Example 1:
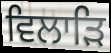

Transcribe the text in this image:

ਵਿਲਾੜਿ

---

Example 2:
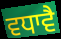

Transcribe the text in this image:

ਵਧਾਵੈ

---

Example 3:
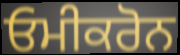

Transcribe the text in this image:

ਓਮੀਕਰੋਨ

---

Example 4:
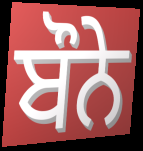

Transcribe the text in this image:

ਬੌਨੇ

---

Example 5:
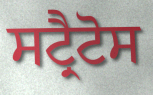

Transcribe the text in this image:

ਸਟ੍ਰੈਟੋਸ